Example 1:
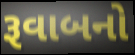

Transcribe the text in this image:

રૂવાબનો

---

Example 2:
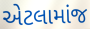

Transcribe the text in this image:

એટલામાંજ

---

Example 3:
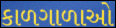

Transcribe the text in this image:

કાળગાળાઓ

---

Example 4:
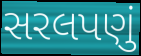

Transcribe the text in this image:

સરલપણું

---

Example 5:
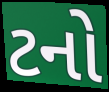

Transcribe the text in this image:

ટનો